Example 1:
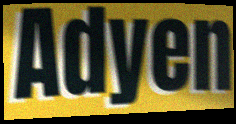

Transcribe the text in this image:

Adyen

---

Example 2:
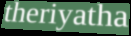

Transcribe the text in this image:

theriyatha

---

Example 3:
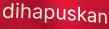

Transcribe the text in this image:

dihapuskan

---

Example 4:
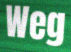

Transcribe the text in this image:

Weg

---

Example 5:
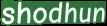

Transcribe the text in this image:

shodhun